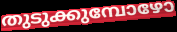
തുടുക്കുമ്പോഴോ